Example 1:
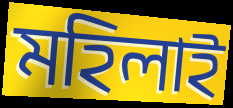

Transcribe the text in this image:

মহিলাই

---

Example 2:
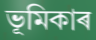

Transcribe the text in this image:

ভূমিকাৰ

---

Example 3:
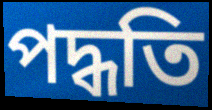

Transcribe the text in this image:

পদ্ধতি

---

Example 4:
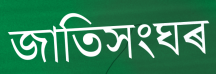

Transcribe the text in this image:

জাতিসংঘৰ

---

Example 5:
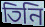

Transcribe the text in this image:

তিনি